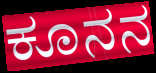
ಕೂನನ